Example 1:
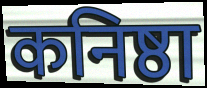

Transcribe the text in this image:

कनिष्ठा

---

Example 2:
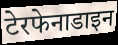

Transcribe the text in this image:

टेरफेनाडाइन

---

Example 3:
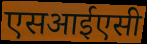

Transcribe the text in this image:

एसआईएसी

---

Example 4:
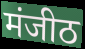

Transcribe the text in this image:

मंजीठ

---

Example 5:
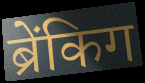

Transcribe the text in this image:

ब्रेंकिग